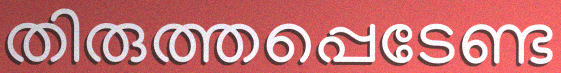
തിരുത്തപ്പെടേണ്ട